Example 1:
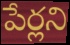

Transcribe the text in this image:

పేర్లని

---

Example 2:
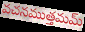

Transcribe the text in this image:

వచనముత్తమమ్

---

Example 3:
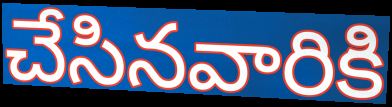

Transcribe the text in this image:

చేసినవారికి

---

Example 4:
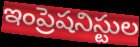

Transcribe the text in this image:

ఇంప్రెషనిస్టుల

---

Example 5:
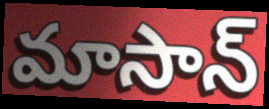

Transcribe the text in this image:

మాసాన్